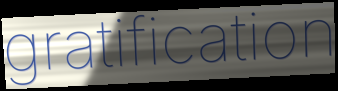
gratification